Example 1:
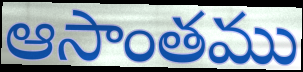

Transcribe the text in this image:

ఆసాంతము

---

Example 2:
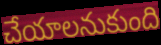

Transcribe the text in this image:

చేయాలనుకుంది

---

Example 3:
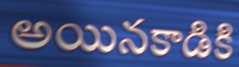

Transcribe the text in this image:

అయినకాడికి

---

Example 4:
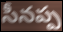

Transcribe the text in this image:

సీనప్ప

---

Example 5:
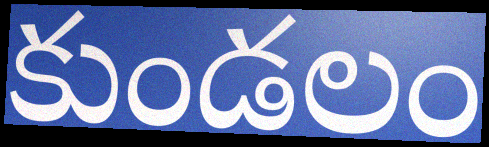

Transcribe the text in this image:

కుండలం